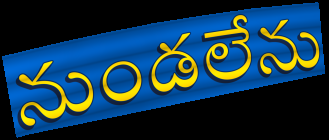
నుండలేను